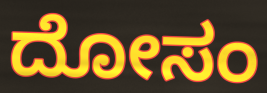
ದೋಸಂ